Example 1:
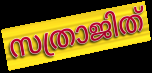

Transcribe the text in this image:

സത്രാജിത്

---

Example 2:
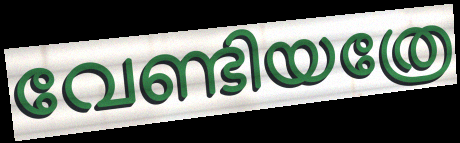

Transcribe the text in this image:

വേണ്ടിയത്രേ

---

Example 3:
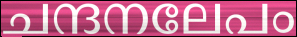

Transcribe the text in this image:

ചന്ദനലേപം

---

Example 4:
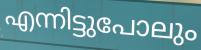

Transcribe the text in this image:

എന്നിട്ടുപോലും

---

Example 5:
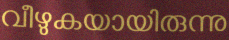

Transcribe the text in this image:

വീഴുകയായിരുന്നു